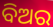
ବିଅର